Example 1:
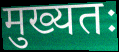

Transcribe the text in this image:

मुख्यतः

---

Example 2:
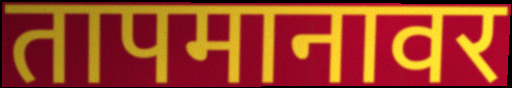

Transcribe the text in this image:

तापमानावर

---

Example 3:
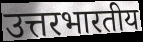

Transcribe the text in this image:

उत्तरभारतीय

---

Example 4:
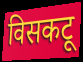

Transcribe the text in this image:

विसकटू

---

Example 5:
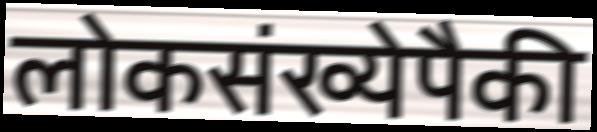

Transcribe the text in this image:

लोकसंख्येपैकी